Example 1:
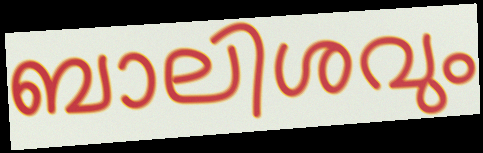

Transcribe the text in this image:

ബാലിശവും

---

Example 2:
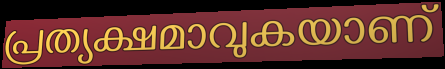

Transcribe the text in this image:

പ്രത്യക്ഷമാവുകയാണ്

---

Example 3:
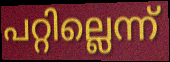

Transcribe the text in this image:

പറ്റില്ലെന്ന്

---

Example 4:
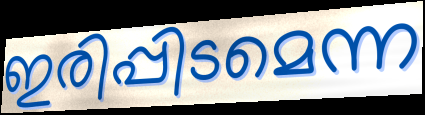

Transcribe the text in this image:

ഇരിപ്പിടമെന്ന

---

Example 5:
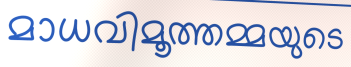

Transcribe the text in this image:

മാധവിമൂത്തമ്മയുടെ